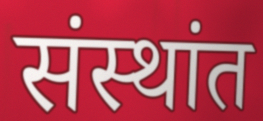
संस्थांत